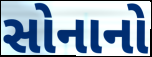
સોનાનો